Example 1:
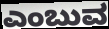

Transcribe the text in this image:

ಎಂಬುವ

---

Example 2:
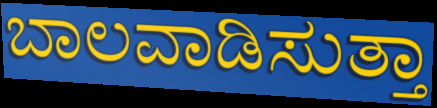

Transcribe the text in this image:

ಬಾಲವಾಡಿಸುತ್ತಾ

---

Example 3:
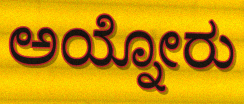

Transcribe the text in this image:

ಅಯ್ನೋರು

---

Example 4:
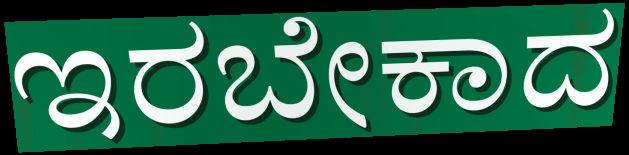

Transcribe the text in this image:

ಇರಬೇಕಾದ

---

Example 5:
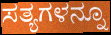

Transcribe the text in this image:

ಸತ್ಯಗಳನ್ನೂ